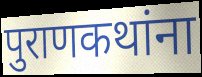
पुराणकथांना